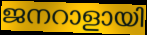
ജനറാളായി